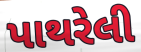
પાથરેલી